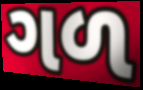
ગળ